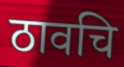
ठावचि